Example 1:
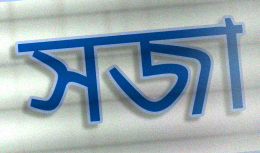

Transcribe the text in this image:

সজা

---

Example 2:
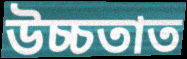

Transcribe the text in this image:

উচ্চতাত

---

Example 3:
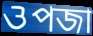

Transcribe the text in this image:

ওপজা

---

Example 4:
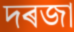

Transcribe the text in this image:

দৰজা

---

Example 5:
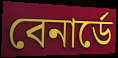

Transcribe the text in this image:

বেনাৰ্ডে